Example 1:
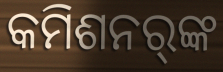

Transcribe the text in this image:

କମିଶନର୍‌ଙ୍କ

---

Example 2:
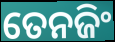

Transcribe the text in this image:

ତେନଜିଂ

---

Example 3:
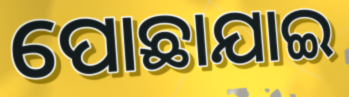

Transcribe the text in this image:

ପୋଛାଯାଇ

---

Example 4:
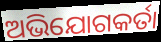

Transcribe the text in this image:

ଅଭିଯୋଗକର୍ତା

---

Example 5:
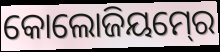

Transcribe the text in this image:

କୋଲୋଜିୟମ୍‍ରେ